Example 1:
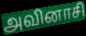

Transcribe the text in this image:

அவினாசி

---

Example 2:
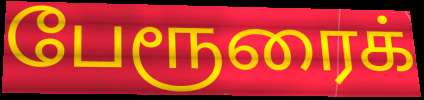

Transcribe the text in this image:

பேரூரைக்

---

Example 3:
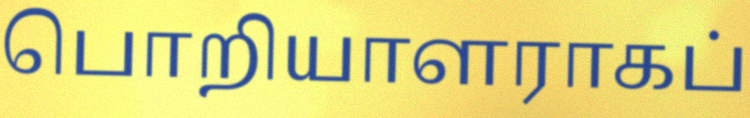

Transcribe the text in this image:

பொறியாளராகப்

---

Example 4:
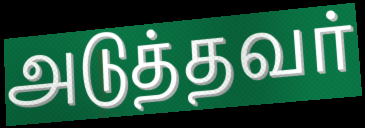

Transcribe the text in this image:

அடுத்தவர்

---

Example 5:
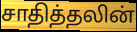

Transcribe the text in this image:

சாதித்தலின்